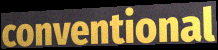
conventional